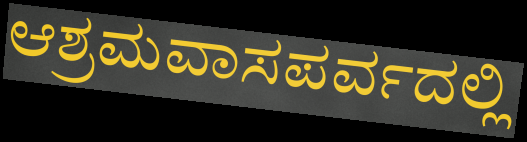
ಆಶ್ರಮವಾಸಪರ್ವದಲ್ಲಿ